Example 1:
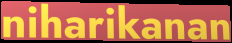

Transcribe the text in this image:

niharikanan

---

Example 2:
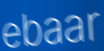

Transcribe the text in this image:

ebaar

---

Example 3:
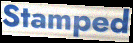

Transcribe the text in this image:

Stamped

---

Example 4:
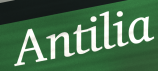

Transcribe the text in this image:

Antilia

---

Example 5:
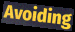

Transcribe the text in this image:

Avoiding